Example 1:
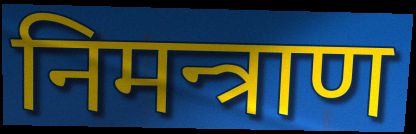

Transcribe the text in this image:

निमन्त्राण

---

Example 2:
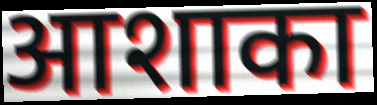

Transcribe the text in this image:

आशाका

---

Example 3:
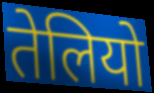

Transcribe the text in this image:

तेलियो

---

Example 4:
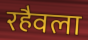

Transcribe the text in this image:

रहैवला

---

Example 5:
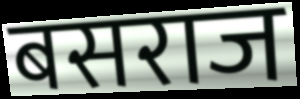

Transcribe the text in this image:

बसराज